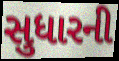
સુધારની